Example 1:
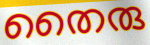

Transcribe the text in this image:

തൈരു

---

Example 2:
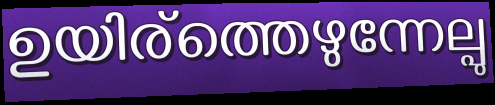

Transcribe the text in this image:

ഉയിര്ത്തെഴുന്നേല്പു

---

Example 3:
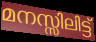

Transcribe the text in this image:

മനസ്സിലിട്ട്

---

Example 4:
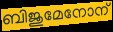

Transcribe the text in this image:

ബിജുമേനോന്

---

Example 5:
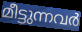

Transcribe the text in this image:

മീട്ടുന്നവർ